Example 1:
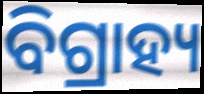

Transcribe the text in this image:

ବିଗ୍ରାହ୍ୟ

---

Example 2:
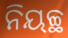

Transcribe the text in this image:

ନିୟଚ୍ଛ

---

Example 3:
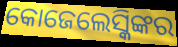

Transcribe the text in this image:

କୋଜେଲେସ୍କିଙ୍କର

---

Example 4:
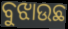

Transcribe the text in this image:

ବୁଝାଉଛ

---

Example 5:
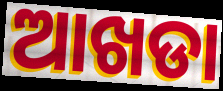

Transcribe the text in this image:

ଆଖଡା